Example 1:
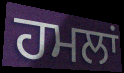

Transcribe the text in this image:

ਹਮਲਾਂ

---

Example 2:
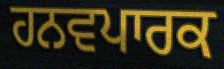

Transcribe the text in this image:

ਹਨਵਪਾਰਕ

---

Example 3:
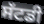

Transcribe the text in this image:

ਸੱਟਡੀ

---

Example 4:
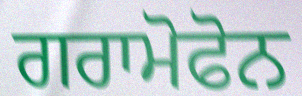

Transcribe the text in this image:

ਗਰਾਮੋਫੋਨ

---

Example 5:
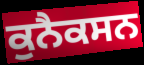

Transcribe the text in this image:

ਕੁਨੈਕਸਨ